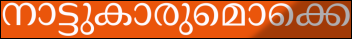
നാട്ടുകാരുമൊക്കെ